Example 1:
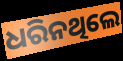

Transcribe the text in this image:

ଧରିନଥିଲେ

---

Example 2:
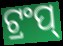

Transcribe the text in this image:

ଟ୍ରଂପ୍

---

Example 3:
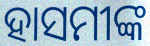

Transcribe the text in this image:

ହାସମୀଙ୍କ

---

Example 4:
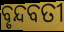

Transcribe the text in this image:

ବୃନ୍ଦବତୀ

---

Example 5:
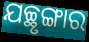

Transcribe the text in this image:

ଯଚ୍ଛୃଙ୍ଗାର